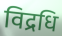
विद्रधि